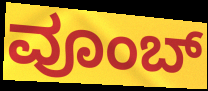
ವೂಂಬ್